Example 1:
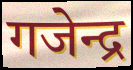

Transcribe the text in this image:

गजेन्‍द्र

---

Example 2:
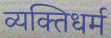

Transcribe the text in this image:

व्यक्तिधर्म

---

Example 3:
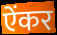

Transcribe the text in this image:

ऐंकर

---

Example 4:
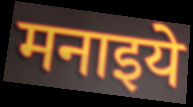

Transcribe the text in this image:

मनाइये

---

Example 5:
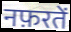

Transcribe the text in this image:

नफ़रतें